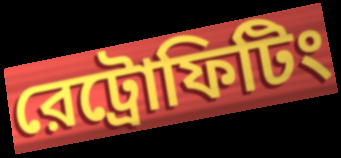
রেট্রোফিটিং